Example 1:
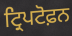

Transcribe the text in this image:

ਟ੍ਰਿਪਟੋਫ਼ਨ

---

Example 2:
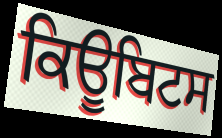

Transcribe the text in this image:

ਕਿਊਬਿਟਸ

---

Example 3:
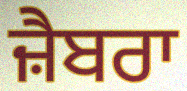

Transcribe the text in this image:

ਜ਼ੈਬਰਾ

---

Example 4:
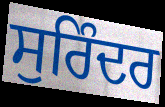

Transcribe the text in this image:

ਸੁਰਿੰਦਰ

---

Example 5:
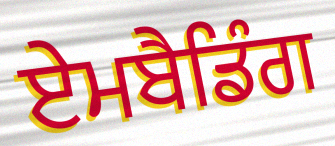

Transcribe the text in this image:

ਏਮਬੈਡਿੰਗ